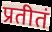
प्रतीतं